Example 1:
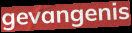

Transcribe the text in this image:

gevangenis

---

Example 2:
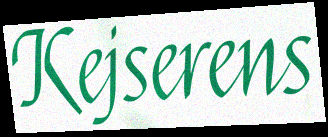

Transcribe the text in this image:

Kejserens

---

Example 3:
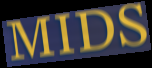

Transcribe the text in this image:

MIDS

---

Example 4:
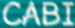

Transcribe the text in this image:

CABI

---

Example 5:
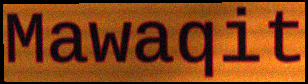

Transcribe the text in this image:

Mawaqit